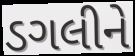
ડગલીને